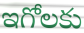
ఇగోలకు